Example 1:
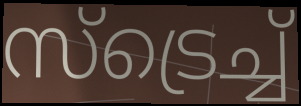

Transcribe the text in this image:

സ്ട്രെച്ച്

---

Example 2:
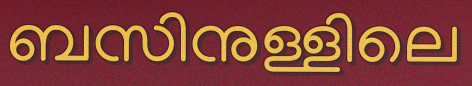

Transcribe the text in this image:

ബസിനുള്ളിലെ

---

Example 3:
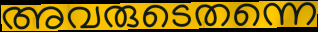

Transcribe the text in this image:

അവരുടെതന്നെ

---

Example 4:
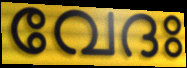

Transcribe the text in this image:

വേദഃ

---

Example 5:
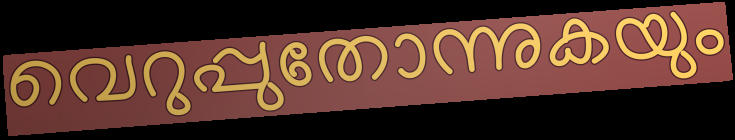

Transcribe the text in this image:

വെറുപ്പുതോന്നുകയും